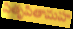
పితృపితామహ